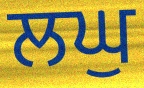
ਲਘੁ